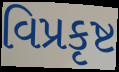
વિપ્રકૃષ્ટ